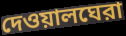
দেওয়ালঘেরা